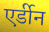
एर्डीन